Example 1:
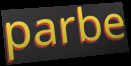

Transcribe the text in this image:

parbe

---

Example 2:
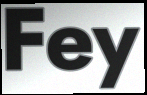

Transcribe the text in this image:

Fey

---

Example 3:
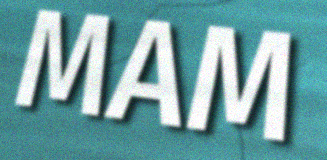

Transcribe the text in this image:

MAM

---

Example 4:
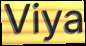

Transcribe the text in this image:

Viya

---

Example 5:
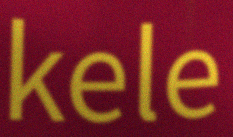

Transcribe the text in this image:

kele